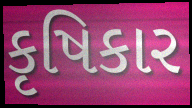
કૃષિકાર